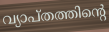
വ്യാപ്തത്തിന്റെ